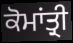
ਕੋਮਾਂਤ੍ਰੀ